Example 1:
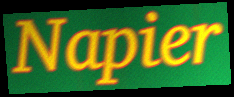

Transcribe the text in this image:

Napier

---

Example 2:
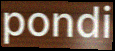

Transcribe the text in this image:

pondi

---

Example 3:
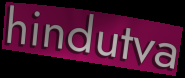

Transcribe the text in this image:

hindutva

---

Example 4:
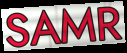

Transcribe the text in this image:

SAMR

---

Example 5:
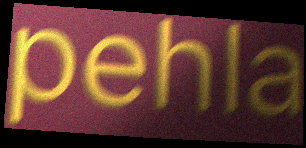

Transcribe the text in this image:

pehla